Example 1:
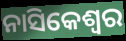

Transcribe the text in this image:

ନାସିକେଶ୍ୱର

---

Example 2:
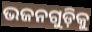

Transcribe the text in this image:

ଭଜନଗୁଡ଼ିକୁ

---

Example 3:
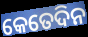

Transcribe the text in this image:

କେତେଦିନ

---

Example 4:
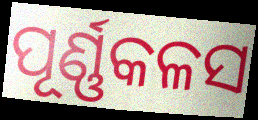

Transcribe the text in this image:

ପୂର୍ଣ୍ଣକଳସ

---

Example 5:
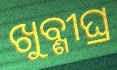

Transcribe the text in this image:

ଖୁବ୍ଶୀଘ୍ର